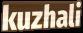
kuzhali